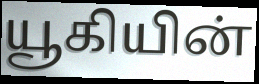
யூகியின்